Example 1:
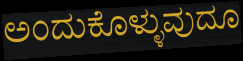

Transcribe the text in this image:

ಅಂದುಕೊಳ್ಳುವುದೂ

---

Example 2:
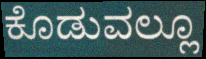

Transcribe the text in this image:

ಕೊಡುವಲ್ಲೂ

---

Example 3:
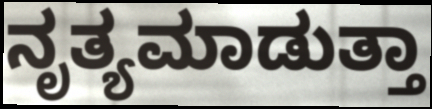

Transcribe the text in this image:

ನೃತ್ಯಮಾಡುತ್ತಾ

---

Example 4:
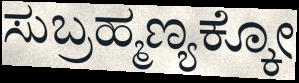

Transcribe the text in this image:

ಸುಬ್ರಹ್ಮಣ್ಯಕ್ಕೋ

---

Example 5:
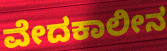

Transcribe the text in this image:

ವೇದಕಾಲೀನ